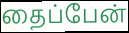
தைப்பேன்